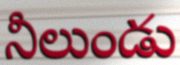
నీలుండు